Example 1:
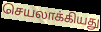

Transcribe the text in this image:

செயலாக்கியது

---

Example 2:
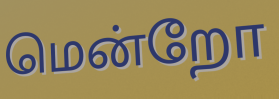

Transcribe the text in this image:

மென்றோ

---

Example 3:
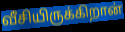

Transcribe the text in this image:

வீசியிருக்கிறான்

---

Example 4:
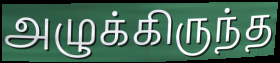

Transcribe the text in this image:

அழுக்கிருந்த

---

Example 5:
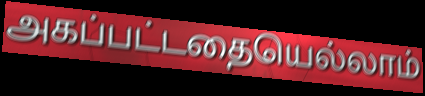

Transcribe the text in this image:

அகப்பட்டதையெல்லாம்